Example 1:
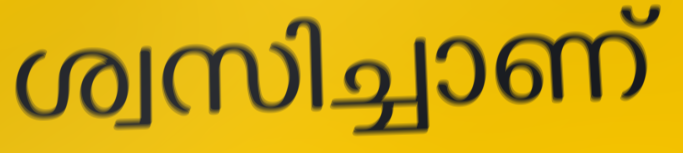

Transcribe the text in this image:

ശ്വസിച്ചാണ്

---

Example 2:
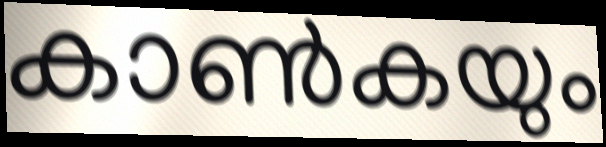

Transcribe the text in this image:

കാൺകയും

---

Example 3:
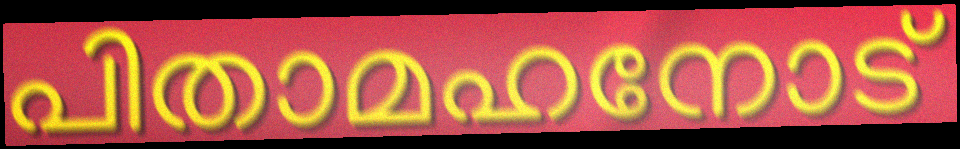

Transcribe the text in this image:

പിതാമഹനോട്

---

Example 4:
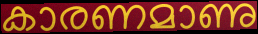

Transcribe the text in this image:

കാരണമാണു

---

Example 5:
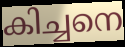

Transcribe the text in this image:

കിച്ചനെ